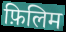
फ़िलिम